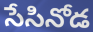
సేసినోడ